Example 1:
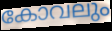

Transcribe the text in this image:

കോവലും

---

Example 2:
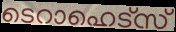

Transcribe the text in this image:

ടെറാഹെട്സ്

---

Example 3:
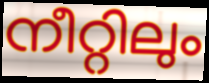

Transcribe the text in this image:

നീറ്റിലും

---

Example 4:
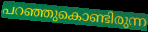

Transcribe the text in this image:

പറഞ്ഞുകൊണ്ടിരുന്ന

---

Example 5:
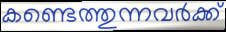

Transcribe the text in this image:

കണ്ടെത്തുന്നവർക്ക്